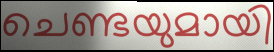
ചെണ്ടയുമായി